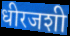
धीरजशी